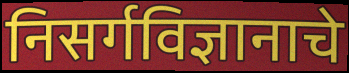
निसर्गविज्ञानाचे